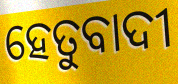
ହେତୁବାଦୀ